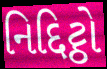
નિદ્દિટ્ઠો